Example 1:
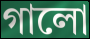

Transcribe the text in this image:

গালো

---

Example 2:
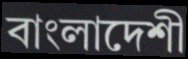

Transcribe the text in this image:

বাংলাদেশী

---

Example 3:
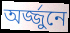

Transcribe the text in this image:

অর্জ্জুনে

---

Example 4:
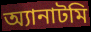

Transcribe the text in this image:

অ্যানাটমি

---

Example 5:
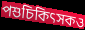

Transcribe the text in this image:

পশুচিকিৎসকও